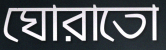
ঘোরাতো